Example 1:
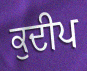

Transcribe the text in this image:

ਕੁਦੀਪ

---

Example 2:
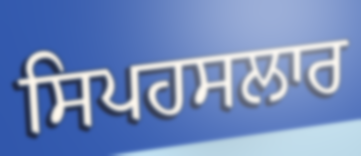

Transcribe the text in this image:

ਸਿਪਹਸਲਾਰ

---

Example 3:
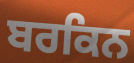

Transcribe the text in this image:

ਬਰਕਿਨ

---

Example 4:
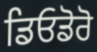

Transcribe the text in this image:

ਡਿਓਡੋਰੋ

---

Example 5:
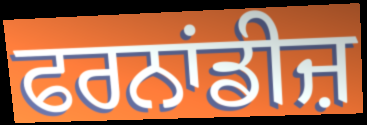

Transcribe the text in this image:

ਫਰਨਾਂਡੀਜ਼